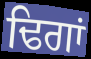
ਢਿਗਾਂ